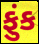
ફુંક